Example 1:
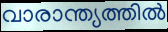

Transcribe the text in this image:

വാരാന്ത്യത്തിൽ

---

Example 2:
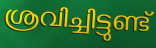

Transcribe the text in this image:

ശ്രവിച്ചിട്ടുണ്ട്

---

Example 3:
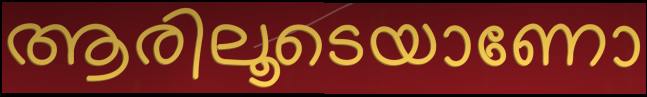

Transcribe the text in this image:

ആരിലൂടെയാണോ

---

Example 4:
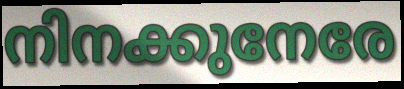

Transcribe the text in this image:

നിനക്കുനേരേ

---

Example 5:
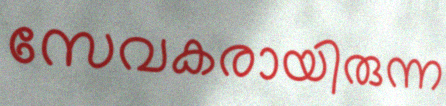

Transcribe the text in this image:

സേവകരായിരുന്ന